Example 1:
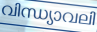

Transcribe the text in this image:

വിന്ധ്യാവലി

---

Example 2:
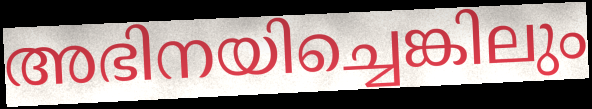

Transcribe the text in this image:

അഭിനയിച്ചെങ്കിലും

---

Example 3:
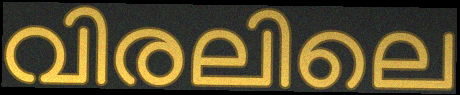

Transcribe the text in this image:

വിരലിലെ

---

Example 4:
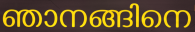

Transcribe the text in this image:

ഞാനങ്ങിനെ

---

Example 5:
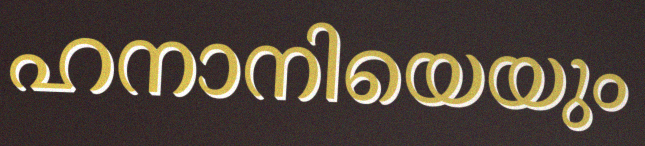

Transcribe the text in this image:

ഹനാനിയെയും